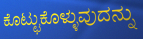
ಕೊಟ್ಟುಕೊಳ್ಳುವುದನ್ನು